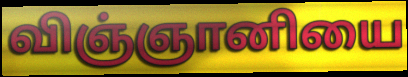
விஞ்ஞானியை